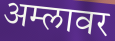
अम्लावर